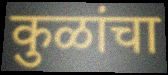
कुळांचा